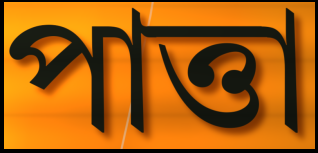
পাত্তা